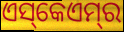
ଏସ୍‌କେଏମ୍‌ର